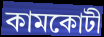
কামকোটী